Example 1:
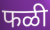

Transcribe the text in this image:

फळी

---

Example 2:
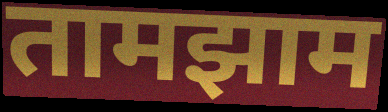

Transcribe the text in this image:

तामझाम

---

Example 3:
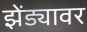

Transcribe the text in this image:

झेंड्यावर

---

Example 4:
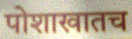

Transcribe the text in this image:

पोशाखातच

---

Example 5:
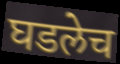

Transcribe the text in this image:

घडलेच